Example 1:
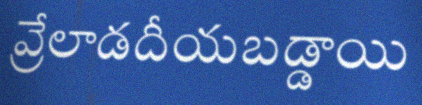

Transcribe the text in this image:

వ్రేలాడదీయబడ్డాయి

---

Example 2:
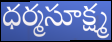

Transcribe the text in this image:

ధర్మసూక్ష్మ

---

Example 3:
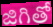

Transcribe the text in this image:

జిగితో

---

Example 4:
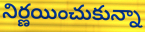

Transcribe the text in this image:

నిర్ణయించుకున్నా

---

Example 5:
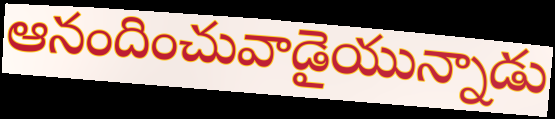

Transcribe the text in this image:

ఆనందించువాడైయున్నాడు